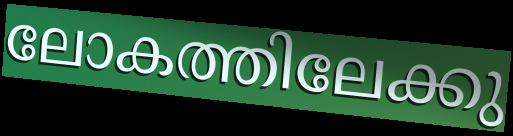
ലോകത്തിലേക്കു